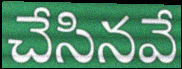
చేసినవే